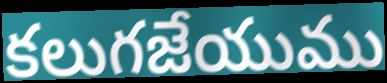
కలుగజేయుము